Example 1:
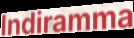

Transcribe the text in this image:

Indiramma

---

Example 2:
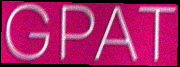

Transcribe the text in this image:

GPAT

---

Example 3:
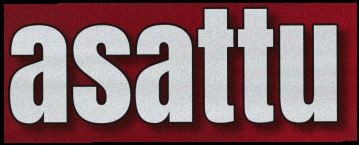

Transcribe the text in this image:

asattu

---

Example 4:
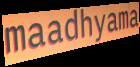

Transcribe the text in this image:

maadhyama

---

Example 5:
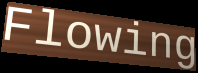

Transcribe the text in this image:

Flowing